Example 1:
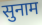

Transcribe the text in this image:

सुनाम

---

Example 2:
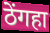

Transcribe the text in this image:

ठेंगहा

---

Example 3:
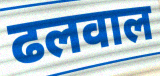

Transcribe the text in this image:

ढलवाल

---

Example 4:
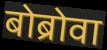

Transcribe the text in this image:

बोब्रोवा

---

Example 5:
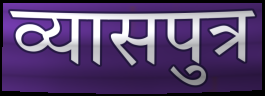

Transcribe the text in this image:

व्यासपुत्र